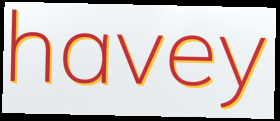
havey